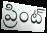
ప్రింట్